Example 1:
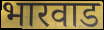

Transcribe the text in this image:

भारवाड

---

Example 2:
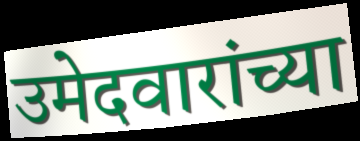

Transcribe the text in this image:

उमेदवारांच्या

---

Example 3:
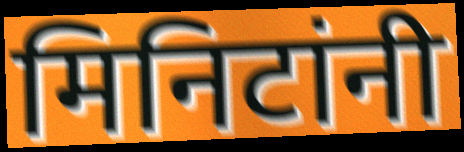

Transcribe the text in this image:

मिनिटांनी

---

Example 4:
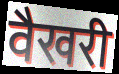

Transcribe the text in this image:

वैखरी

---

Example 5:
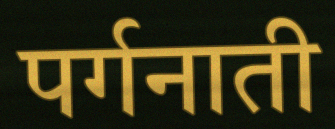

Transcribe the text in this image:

पर्गनाती